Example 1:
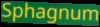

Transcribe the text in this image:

Sphagnum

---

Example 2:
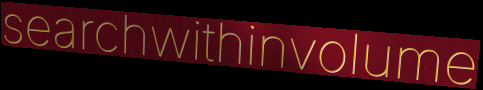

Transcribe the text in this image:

searchwithinvolume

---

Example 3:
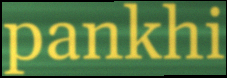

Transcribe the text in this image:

pankhi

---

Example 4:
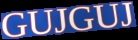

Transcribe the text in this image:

GUJGUJ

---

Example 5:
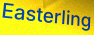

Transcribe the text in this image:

Easterling